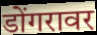
डोंगरावर